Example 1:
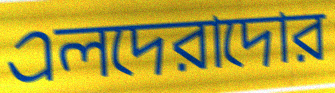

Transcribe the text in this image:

এলদেরাদোর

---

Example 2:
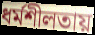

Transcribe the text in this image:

ধর্মশীলতায়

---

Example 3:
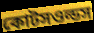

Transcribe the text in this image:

কোটসওল্ডস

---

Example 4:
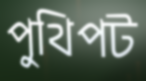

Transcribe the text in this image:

পুথিপট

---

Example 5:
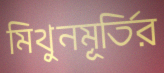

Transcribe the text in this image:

মিথুনমূর্তির